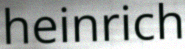
heinrich